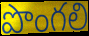
పొంగలి